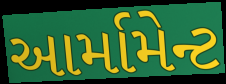
આર્મામેન્ટ